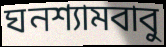
ঘনশ্যামবাবু